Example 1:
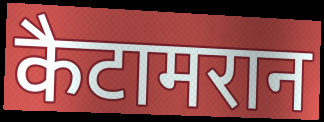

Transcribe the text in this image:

कैटामरान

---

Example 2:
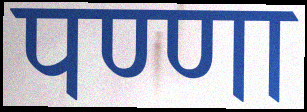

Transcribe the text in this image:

पण्णा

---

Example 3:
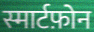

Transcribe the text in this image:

स्‍मार्टफ़ोन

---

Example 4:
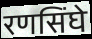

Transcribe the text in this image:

रणसिंघे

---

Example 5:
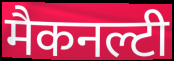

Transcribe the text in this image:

मैकनल्टी